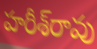
హరీశ్‌రావు